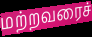
மற்றவரைச்